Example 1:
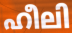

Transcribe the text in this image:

ഹീലി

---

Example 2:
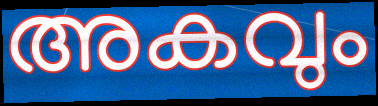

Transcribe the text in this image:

അകവും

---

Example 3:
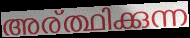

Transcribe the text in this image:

അര്ത്ഥിക്കുന്ന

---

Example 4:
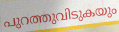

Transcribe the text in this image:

പുറത്തുവിടുകയും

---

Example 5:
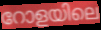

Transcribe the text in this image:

റോളയിലെ